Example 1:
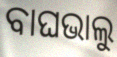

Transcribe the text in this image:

ବାଘଭାଲୁ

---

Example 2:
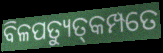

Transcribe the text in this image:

ବିଳପତ୍ୟୁତ୍‌କମ୍ପତେ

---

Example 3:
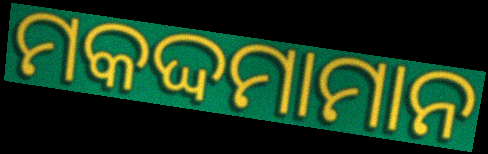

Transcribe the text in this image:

ମକଦ୍ଦମାମାନ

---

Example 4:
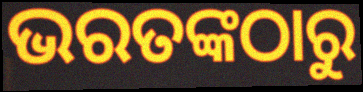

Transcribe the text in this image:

ଭରତଙ୍କଠାରୁ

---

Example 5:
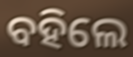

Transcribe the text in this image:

ବହିଲେ